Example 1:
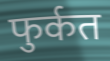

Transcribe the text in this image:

फुर्कत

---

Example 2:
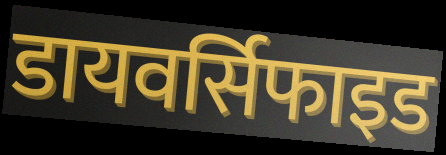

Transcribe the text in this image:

डायवर्सिफाइड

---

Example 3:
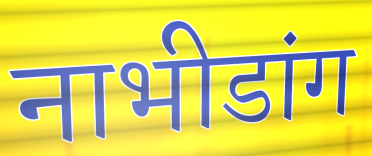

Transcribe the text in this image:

नाभीडांग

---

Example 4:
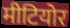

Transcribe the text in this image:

मीटियोर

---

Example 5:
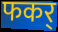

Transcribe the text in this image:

फकर्